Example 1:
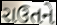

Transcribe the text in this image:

રાઉતને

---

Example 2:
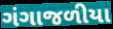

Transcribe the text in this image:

ગંગાજળીયા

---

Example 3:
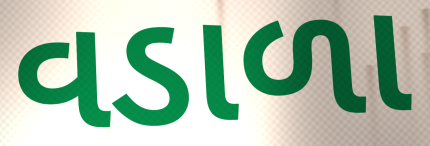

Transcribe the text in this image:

વડાળા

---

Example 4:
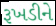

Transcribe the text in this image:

રૂખડીને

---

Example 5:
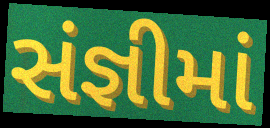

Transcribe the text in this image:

સંજ્ઞીમાં